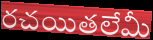
రచయితలేమీ